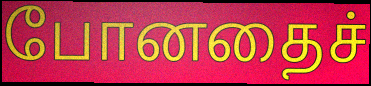
போனதைச்